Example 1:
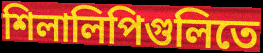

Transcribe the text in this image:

শিলালিপিগুলিতে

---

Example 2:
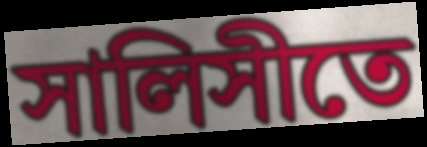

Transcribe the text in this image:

সালিসীতে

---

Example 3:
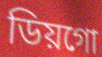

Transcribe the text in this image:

ডিয়গো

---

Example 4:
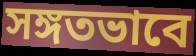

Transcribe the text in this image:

সঙ্গতভাবে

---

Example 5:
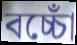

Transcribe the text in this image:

বচ্চোঁ